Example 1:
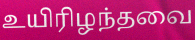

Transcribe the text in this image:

உயிரிழந்தவை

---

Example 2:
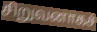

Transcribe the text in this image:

சிறுவனாகச்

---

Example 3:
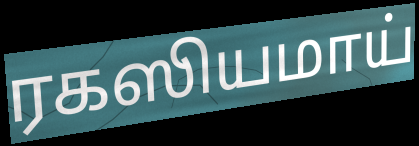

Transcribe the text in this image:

ரகஸியமாய்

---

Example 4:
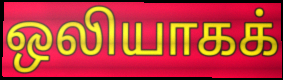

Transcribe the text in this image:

ஒலியாகக்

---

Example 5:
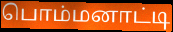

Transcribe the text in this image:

பொம்மனாட்டி